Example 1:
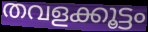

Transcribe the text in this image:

തവളക്കൂട്ടം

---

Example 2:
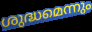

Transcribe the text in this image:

ശുദ്ധമെന്നും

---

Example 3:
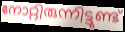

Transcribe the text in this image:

നോറ്റിരുന്നിട്ടുണ്ട്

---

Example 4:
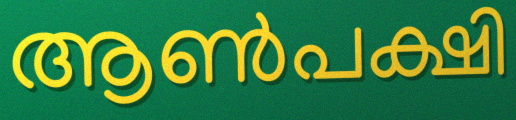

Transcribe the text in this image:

ആൺപക്ഷി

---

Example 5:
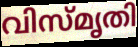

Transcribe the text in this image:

വിസ്മൃതി